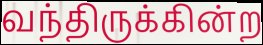
வந்திருக்கின்ற